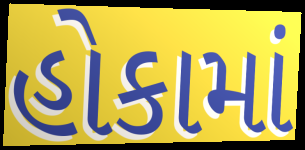
હોકામાં